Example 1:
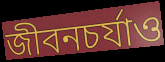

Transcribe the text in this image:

জীবনচর্যাও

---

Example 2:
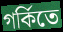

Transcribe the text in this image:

গর্কিতে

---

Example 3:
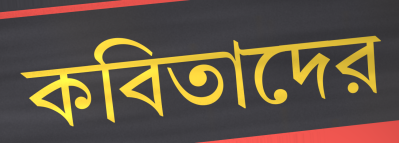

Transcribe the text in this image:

কবিতাদের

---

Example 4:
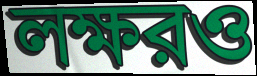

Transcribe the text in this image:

লক্ষরও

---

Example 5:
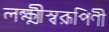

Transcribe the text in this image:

লক্ষ্মীস্বরূপিণী